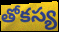
తోకస్య